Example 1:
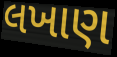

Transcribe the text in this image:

લખાણ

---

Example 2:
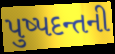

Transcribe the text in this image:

પુષ્પદન્તની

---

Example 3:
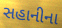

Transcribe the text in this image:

સહાનીના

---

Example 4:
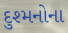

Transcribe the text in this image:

દુશ્મનોના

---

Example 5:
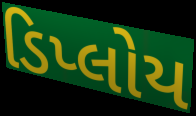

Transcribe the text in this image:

ડિપ્લોય